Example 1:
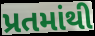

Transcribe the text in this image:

પ્રતમાંથી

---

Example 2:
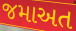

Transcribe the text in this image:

જમાઅત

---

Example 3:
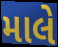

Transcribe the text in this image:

માલે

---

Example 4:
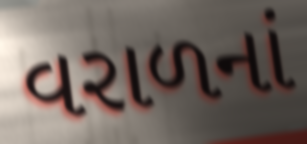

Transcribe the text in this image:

વરાળનાં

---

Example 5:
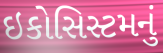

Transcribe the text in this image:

ઇકોસિસ્ટમનું